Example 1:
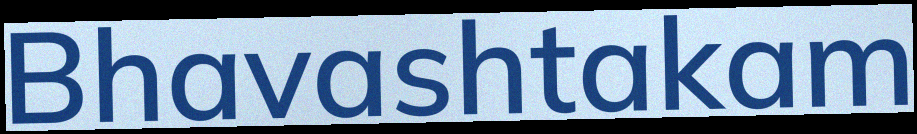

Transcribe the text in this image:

Bhavashtakam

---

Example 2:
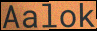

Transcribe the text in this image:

Aalok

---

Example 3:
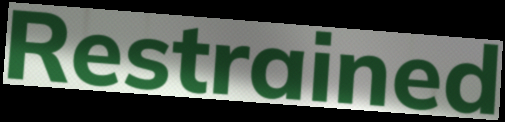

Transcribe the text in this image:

Restrained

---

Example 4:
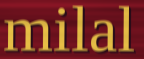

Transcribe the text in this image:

milal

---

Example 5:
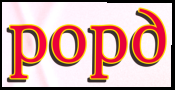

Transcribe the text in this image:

popd